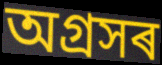
অগ্ৰসৰ